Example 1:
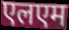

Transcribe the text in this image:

एलएम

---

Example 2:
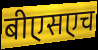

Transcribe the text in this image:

बीएसएच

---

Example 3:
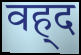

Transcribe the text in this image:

वह्द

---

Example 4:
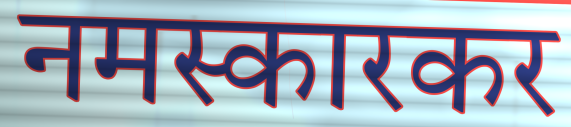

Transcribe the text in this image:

नमस्कारकर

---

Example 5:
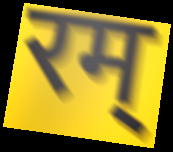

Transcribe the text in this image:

रम्